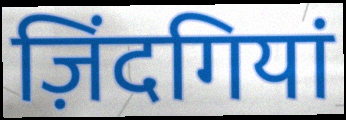
ज़िंदगियां